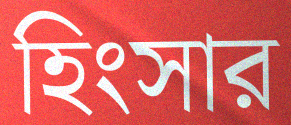
হিংসার